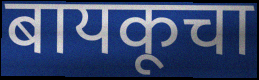
बायकूचा